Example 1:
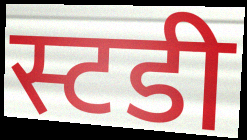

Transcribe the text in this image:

स्टडी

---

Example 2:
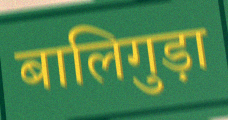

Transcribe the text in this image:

बालिगुड़ा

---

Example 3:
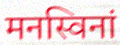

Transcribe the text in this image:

मनस्विनां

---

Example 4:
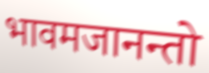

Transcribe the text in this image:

भावमजानन्तो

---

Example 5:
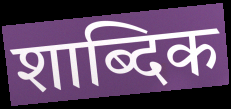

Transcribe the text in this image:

शाब्दिक